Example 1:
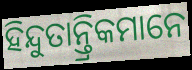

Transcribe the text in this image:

ହିନ୍ଦୁତାନ୍ତ୍ରିକମାନେ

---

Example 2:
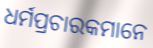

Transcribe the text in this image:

ଧର୍ମପ୍ରଚାରକମାନେ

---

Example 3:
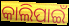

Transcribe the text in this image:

କାଲିପାଇଁ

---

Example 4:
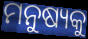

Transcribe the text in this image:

ମନୁଷ୍ୟକୁ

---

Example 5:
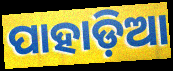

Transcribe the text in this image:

ପାହାଡ଼ିଆ